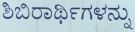
ಶಿಬಿರಾರ್ಥಿಗಳನ್ನು